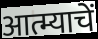
आत्म्याचें